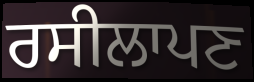
ਰਸੀਲਾਪਣ